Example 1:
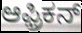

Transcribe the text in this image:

ಆಫ಼್ರಿಕನ್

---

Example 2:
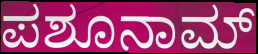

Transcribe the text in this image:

ಪಶೂನಾಮ್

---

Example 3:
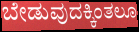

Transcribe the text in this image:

ಬೇಡುವುದಕ್ಕಿಂತಲೂ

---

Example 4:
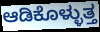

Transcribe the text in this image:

ಆಡಿಕೊಳ್ಳುತ್ತ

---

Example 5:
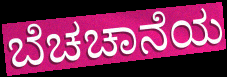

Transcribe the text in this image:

ಬೆಚಚಾನೆಯ